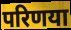
परिणया